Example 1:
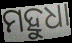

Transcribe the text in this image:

ମହୁଧା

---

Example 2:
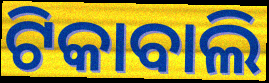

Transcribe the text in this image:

ଟିକାବାଲି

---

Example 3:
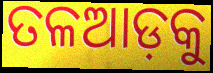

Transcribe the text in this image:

ତଳଆଡ଼କୁ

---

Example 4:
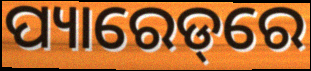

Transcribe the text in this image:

ପ୍ୟାରେଡ୍‌ରେ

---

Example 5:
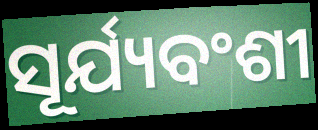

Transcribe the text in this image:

ସୂର୍ଯ୍ୟବଂଶୀ